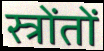
स्त्रोंतों